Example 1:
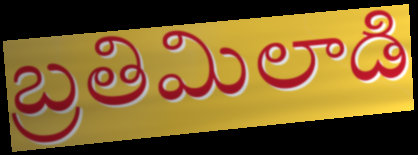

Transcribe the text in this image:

బ్రతిమిలాడి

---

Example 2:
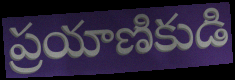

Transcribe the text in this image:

ప్రయాణికుడి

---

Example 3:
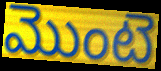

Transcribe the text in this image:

మొంటె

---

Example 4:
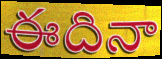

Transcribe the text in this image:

ఈదినా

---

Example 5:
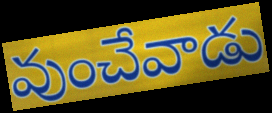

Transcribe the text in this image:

వుంచేవాడు